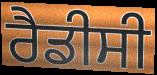
ਰੈਡੀਸੀ